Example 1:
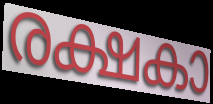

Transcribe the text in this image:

രക്ഷകാ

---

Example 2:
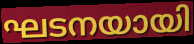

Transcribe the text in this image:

ഘടനയായി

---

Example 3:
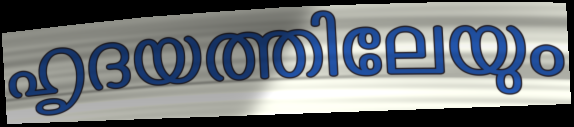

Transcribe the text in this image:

ഹൃദയത്തിലേയും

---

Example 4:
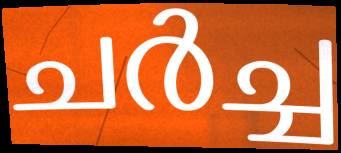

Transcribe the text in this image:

ചർച്ച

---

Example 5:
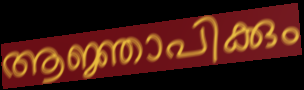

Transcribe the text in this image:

ആജ്ഞാപിക്കും